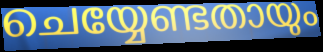
ചെയ്യേണ്ടതായും